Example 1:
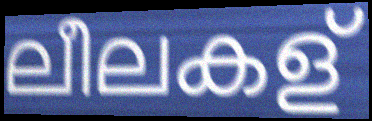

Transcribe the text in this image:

ലീലകള്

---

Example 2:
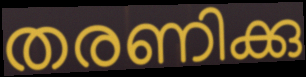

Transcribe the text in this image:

തരണിക്കു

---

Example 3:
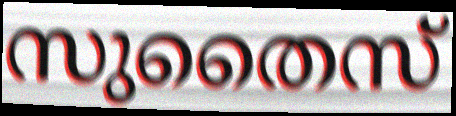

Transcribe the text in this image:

സുതൈസ്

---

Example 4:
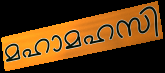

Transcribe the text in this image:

മഹാമഹസി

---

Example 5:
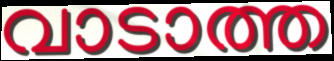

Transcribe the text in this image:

വാടാത്ത